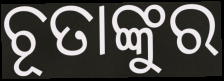
ଚୂତାଙ୍କୁର